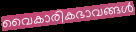
വൈകാരികഭാവങ്ങൾ